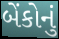
બેંકોનું